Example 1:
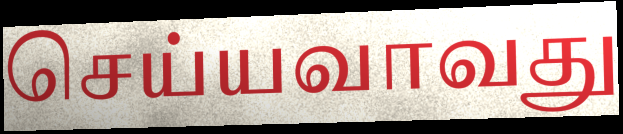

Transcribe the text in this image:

செய்யவாவது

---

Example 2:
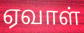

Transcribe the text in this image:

ஏவாள்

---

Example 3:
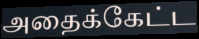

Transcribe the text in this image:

அதைக்கேட்ட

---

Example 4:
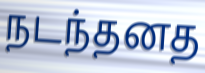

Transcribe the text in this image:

நடந்தனத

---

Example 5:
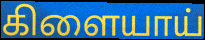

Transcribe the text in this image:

கிளையாய்